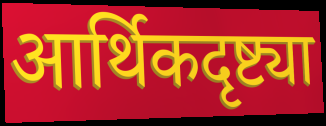
आर्थिकदृष्ट्या